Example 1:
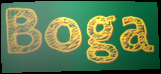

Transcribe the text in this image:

Boga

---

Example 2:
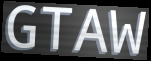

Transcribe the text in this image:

GTAW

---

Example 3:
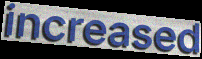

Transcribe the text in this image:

increased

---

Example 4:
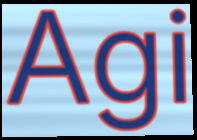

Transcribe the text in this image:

Agi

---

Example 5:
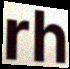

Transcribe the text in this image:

rh